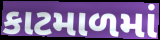
કાટમાળમાં